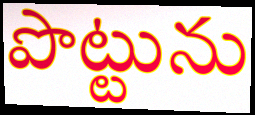
పొట్టును